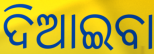
ଦିଆଇବା